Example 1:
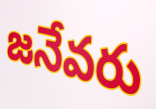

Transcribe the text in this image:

జనేవరు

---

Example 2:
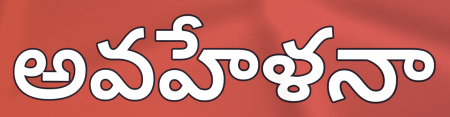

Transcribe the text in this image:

అవహేళనా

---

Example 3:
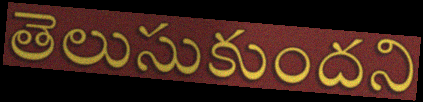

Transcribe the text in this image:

తెలుసుకుందని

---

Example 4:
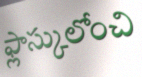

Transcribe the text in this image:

ఫ్లాస్కులోంచి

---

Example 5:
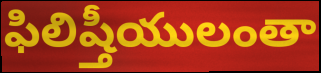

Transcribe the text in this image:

ఫిలిష్తీయులంతా